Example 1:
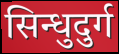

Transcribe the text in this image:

सिन्धुदुर्ग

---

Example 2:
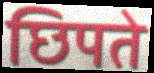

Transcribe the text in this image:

छिपते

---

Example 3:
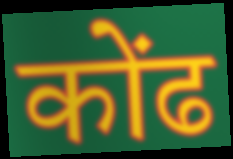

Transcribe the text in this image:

कोंढ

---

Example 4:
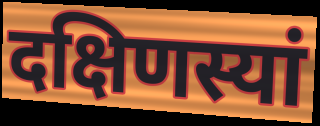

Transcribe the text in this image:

दक्षिणस्यां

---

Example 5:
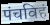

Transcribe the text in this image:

पंचविहं